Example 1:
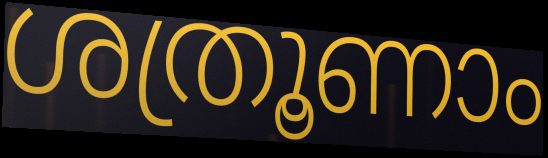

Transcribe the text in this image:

ശത്രൂണാം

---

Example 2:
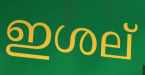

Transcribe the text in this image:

ഇശല്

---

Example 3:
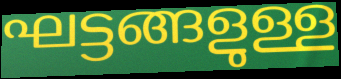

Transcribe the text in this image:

ഘട്ടങ്ങളുള്ള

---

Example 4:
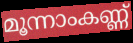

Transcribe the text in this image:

മൂന്നാംകണ്ണ്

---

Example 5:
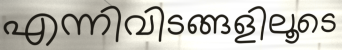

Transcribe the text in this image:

എന്നിവിടങ്ങളിലൂടെ